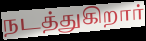
நடத்துகிறார்